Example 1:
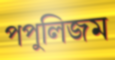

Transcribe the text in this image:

পপুলিজম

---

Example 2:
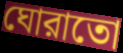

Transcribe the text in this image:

ঘোরাতো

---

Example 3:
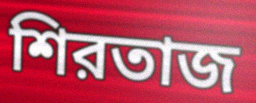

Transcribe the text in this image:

শিরতাজ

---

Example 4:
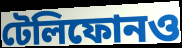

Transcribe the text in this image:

টেলিফোনও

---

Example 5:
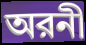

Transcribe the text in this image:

অরনী